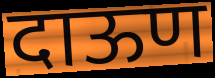
दाऊण